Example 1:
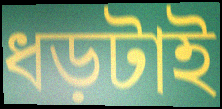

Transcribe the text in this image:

ধড়টাই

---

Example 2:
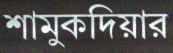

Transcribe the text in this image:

শামুকদিয়ার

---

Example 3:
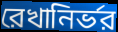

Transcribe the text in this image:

রেখানির্ভর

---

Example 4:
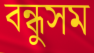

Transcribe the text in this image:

বন্ধুসম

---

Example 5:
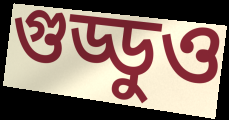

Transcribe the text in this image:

গুড্ডুও